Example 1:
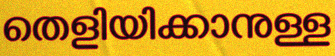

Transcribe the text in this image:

തെളിയിക്കാനുള്ള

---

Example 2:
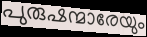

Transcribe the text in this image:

പുരുഷന്മാരേയും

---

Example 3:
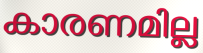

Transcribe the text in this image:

കാരണമില്ല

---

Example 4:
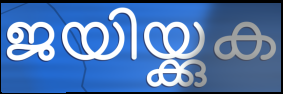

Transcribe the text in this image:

ജയിയ്ക്കുക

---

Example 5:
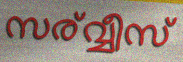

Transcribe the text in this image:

സര്വ്വീസ്